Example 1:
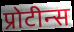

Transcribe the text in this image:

प्रोटीन्स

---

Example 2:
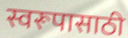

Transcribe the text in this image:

स्वरूपासाठी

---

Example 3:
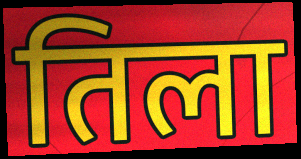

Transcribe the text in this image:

तिला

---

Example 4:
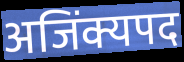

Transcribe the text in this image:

अजिंक्यपद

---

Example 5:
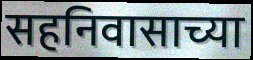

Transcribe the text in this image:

सहनिवासाच्या